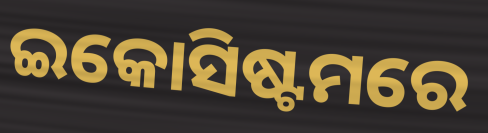
ଇକୋସିଷ୍ଟମରେ